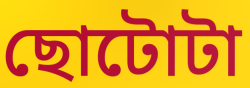
ছোটোটা